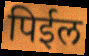
पिईल